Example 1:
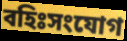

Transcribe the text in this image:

বহিঃসংযোগ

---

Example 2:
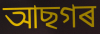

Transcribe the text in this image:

আছগৰ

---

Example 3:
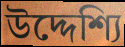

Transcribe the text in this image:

উদ্দেশ্যি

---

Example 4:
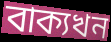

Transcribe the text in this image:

বাক্যখন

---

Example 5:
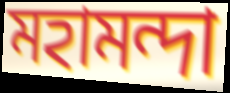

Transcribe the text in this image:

মহামন্দা